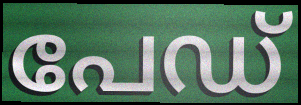
പേഡ്